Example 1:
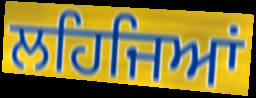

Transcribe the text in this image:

ਲਹਿਜਿਆਂ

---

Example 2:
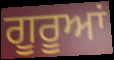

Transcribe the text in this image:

ਗੂਰੂਆਂ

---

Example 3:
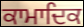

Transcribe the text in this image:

ਕਾਮਾਦਿਕ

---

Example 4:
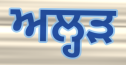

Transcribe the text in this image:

ਅਲ੍ਹੜ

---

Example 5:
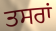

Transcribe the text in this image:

ਤਸਰਾਂ